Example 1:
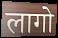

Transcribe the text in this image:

लागो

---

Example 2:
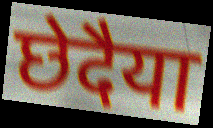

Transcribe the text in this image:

छेदैया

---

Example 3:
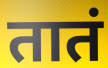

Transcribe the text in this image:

तातं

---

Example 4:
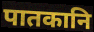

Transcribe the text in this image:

पातकानि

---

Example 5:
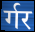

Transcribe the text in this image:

र्गर